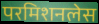
परमिशनलेस